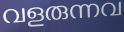
വളരുന്നവ